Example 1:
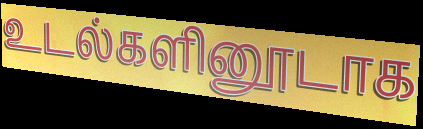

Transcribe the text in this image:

உடல்களினூடாக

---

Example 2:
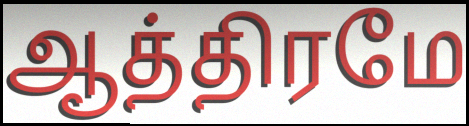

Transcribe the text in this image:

ஆத்திரமே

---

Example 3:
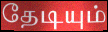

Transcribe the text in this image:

தேடியும்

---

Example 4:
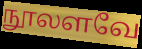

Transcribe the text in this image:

நூலளவே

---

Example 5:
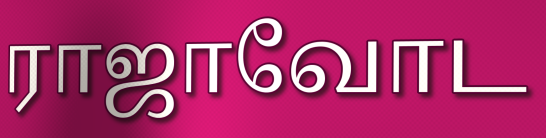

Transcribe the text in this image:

ராஜாவோட